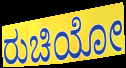
ರುಚಿಯೋ